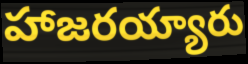
హాజరయ్యారు